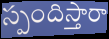
స్పందిస్తారా